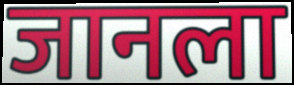
जानला